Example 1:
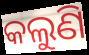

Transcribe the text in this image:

କଲୁଣି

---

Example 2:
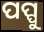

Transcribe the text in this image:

ପପ୍ପୁ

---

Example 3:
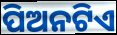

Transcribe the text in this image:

ପିଅନଟିଏ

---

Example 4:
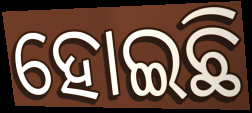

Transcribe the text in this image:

ହୋଇଛି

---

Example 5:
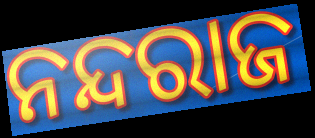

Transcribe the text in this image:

ନନ୍ଦରାଜ